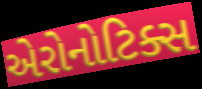
એરોનોટિક્સ